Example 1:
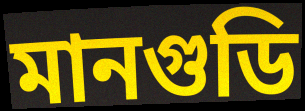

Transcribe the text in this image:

মানগুডি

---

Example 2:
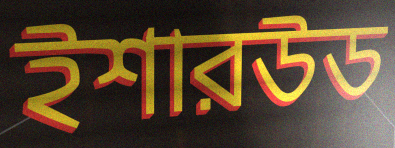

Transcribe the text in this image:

ইশারউড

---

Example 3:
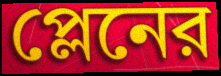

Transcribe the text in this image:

প্লেনের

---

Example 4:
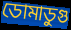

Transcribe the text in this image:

ডোমাডুগু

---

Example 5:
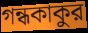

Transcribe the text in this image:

গন্ধকাকুর